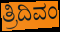
ತ್ರಿದಿವಂ